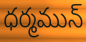
ధర్మమున్